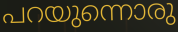
പറയുന്നൊരു